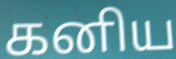
கனிய